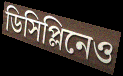
ডিসিপ্লিনেও